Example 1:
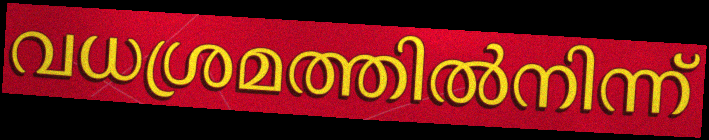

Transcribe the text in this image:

വധശ്രമത്തിൽനിന്ന്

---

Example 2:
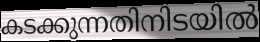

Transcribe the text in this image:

കടക്കുന്നതിനിടയിൽ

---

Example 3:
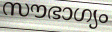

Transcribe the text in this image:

സൗഭാഗ്യം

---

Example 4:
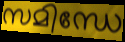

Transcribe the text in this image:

സമിന്ധേ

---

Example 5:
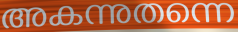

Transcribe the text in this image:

അകന്നുതന്നെ